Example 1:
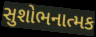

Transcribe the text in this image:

સુશોભનાત્મક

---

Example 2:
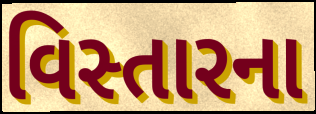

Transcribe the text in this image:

વિસ્તારના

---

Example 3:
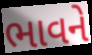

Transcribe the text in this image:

ભાવને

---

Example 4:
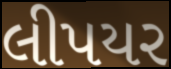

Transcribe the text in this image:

લીપયર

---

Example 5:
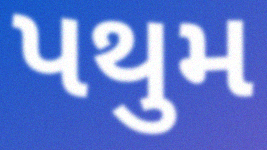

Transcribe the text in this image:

પથુમ